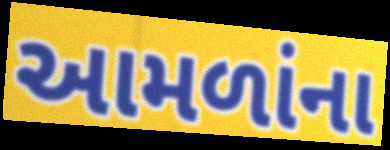
આમળાંના